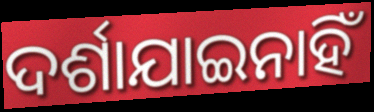
ଦର୍ଶାଯାଇନାହିଁ